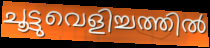
ചൂട്ടുവെളിച്ചത്തിൽ